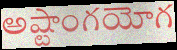
అష్టాంగయోగ